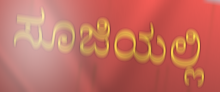
ಸೂಜಿಯಲ್ಲಿ